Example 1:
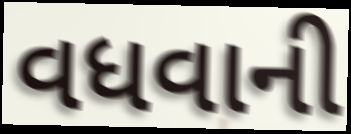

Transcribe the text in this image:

વધવાની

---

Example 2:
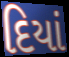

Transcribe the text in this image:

દિયાં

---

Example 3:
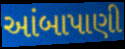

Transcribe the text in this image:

આંબાપાણી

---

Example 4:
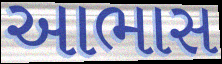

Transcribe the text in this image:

આભાસ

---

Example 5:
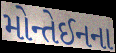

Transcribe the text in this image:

મોન્તેઈનના